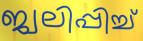
ജ്വലിപ്പിച്ച്